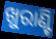
ଖୁରାଣ୍ଟି